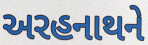
અરહનાથને